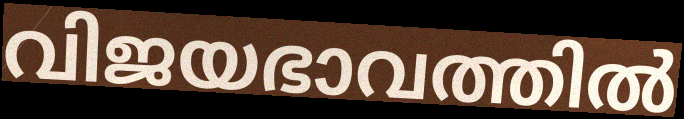
വിജയഭാവത്തിൽ